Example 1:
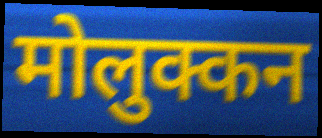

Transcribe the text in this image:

मोलुक्कन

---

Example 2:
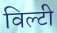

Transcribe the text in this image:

विल्टी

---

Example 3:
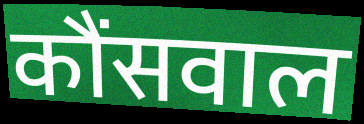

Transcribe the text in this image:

कौंसवाल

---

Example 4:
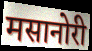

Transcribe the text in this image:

मसानोरी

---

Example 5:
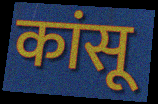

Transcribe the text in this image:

कांसू